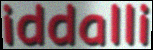
iddalli